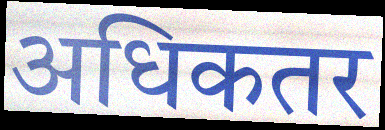
अधिकतर